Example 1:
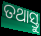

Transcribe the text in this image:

ତଥାସ୍ତୁ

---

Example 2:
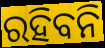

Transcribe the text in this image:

ରହିବନି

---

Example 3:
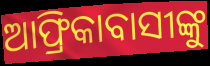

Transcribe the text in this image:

ଆଫ୍ରିକାବାସୀଙ୍କୁ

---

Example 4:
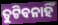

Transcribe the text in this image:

ତୁଟିବନାହିଁ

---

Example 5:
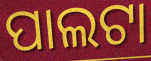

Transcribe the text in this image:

ପାଲଟା